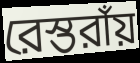
রেস্তরাঁয়